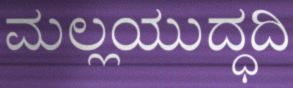
ಮಲ್ಲಯುದ್ಧದಿ